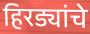
हिरड्यांचे